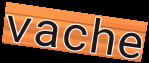
vache